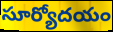
సూర్యోదయం